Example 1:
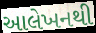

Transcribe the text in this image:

આલેખનથી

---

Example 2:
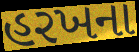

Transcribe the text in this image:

હરખના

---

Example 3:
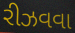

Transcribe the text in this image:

રીઝવવા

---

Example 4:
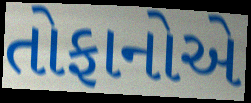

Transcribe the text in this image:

તોફાનોએ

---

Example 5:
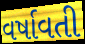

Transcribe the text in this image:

વર્ષાવતી